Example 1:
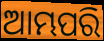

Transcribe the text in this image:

ଆମ୍ଭପରି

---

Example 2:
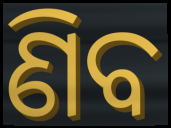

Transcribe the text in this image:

ଣିବ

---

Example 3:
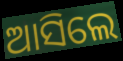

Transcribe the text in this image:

ଆସିଲେ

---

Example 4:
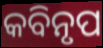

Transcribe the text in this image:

କବିନୃପ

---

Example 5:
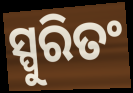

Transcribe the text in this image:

ସ୍ପୁରିତଂ